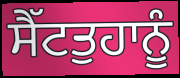
ਸੈੱਟਤੁਹਾਨੂੰ